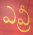
ఎవ్రీ